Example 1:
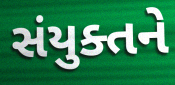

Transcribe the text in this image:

સંયુક્તને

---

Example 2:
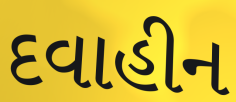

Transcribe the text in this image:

દવાહીન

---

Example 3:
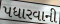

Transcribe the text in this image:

પધારવાની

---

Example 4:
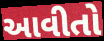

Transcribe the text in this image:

આવીતો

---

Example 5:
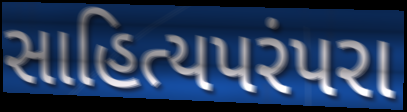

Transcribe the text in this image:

સાહિત્યપરંપરા